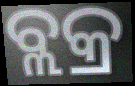
ବ୍ଲକ୍ର